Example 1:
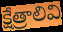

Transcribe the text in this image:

క్షేత్రాలివి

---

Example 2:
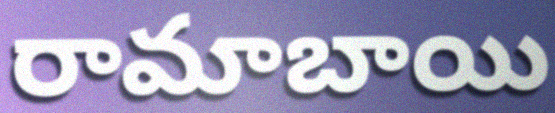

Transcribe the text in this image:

రామాబాయి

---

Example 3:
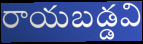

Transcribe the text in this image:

రాయబడ్డవి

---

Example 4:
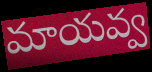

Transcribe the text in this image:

మాయవ్వ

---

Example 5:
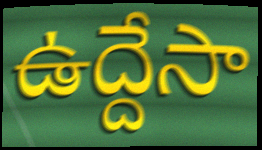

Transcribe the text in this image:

ఉద్దేసా